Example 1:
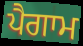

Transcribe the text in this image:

ਪੈਗਾਮ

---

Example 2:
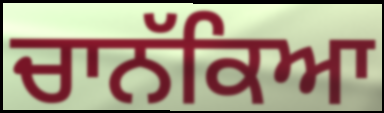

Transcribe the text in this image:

ਚਾਨੱਕਿਆ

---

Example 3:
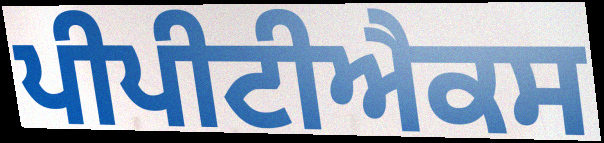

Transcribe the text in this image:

ਪੀਪੀਟੀਐਕਸ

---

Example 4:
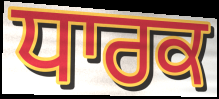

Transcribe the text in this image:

ਧਾਰਕ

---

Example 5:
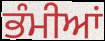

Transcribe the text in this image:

ਭੰਮੀਆਂ